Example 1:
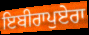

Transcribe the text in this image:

ਇਬੀਰਾਪੁਏਰਾ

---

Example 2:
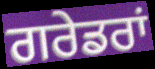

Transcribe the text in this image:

ਗਰੇਡਰਾਂ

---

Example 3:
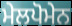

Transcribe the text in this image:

ਮੇਲਪੋਮੇਨ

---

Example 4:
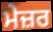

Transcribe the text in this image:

ਮੇਜ਼ਰ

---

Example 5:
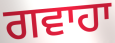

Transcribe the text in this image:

ਗਵਾਹਾ